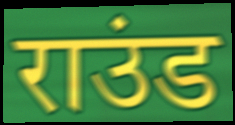
राउंड